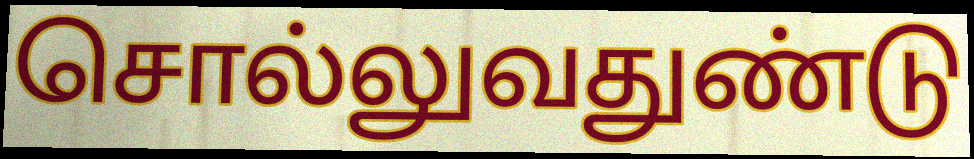
சொல்லுவதுண்டு